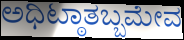
ಅಧಿಟ್ಠಾತಬ್ಬಮೇವ